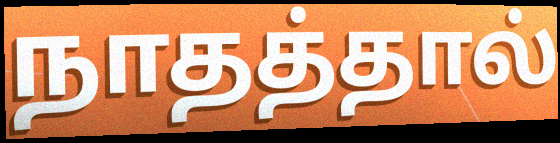
நாதத்தால்